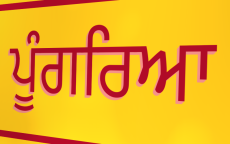
ਪੂੰਗਰਿਆ